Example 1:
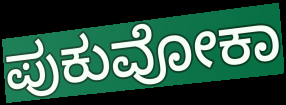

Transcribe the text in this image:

ಪುಕುವೋಕಾ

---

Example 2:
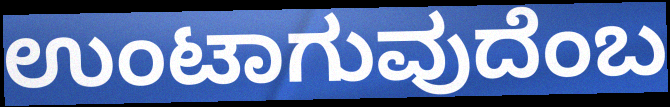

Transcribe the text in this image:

ಉಂಟಾಗುವುದೆಂಬ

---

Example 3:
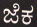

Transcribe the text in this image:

ಜೆಕ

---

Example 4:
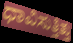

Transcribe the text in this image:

ಧಾವಿಸುತ್ತಿತ್ತು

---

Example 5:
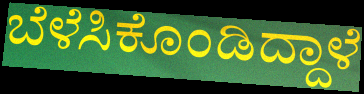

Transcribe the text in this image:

ಬೆಳೆಸಿಕೊಂಡಿದ್ದಾಳೆ